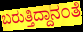
ಬರುತ್ತಿದ್ದಾನಂತೆ